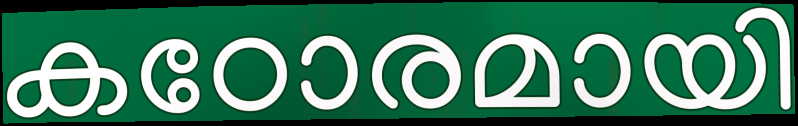
കഠോരമായി